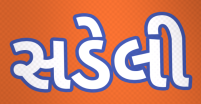
સડેલી